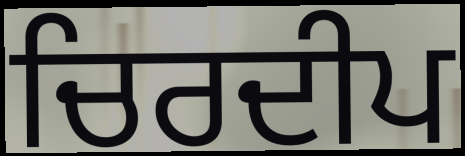
ਚਿਰਦੀਪ